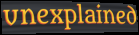
unexplained